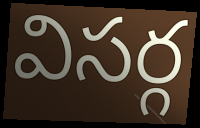
విసర్గ